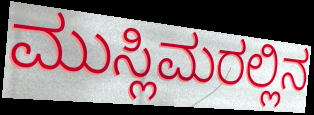
ಮುಸ್ಲಿಮರಲ್ಲಿನ